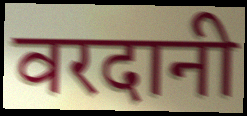
वरदानी